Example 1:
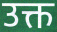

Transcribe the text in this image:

उक्त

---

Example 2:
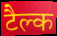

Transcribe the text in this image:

टैल्क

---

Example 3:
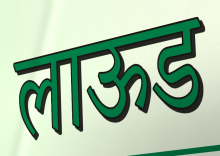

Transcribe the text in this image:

लाऊड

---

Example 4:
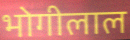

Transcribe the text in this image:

भोगीलाल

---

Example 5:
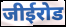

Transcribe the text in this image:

जीईरोड